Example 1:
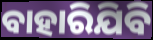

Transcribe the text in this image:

ବାହାରିଯିବି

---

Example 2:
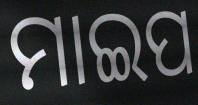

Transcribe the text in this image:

ମାଇପ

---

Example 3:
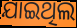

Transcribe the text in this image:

ଯାଇଥିଲ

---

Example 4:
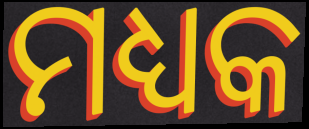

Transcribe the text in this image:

ମଧ୍ଯକ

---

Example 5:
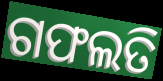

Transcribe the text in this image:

ଗଫଲତି